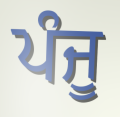
ਪੰਜੂ